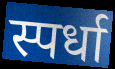
स्पर्धा